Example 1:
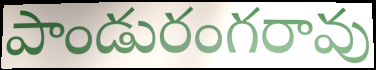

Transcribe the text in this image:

పాండురంగరావు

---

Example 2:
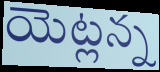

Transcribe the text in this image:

యెట్లన్న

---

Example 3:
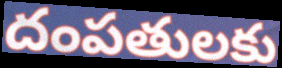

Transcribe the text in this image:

దంపతులకు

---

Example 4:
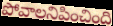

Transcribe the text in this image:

పోవాలనిపించింది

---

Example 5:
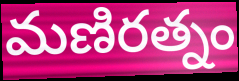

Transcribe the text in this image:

మణిరత్నం